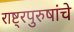
राष्ट्रपुरुषांचे